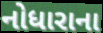
નોધારાના